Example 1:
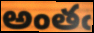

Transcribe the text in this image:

అంతఁ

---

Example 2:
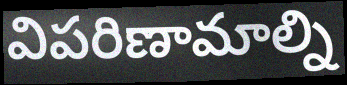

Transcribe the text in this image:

విపరిణామాల్ని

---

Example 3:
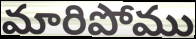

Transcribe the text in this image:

మారిపోము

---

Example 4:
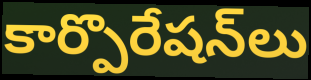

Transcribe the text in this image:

కార్పొరేషన్‌లు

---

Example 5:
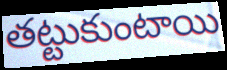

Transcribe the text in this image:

తట్టుకుంటాయి